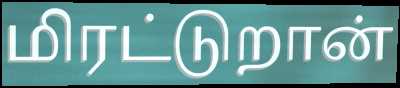
மிரட்டுறான்